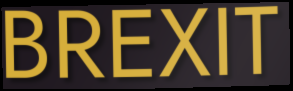
BREXIT